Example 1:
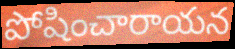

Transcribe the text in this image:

పోషించారాయన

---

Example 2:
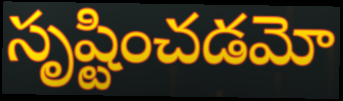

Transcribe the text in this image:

సృష్టించడమో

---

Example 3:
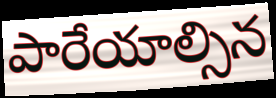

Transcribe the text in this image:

పారేయాల్సిన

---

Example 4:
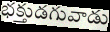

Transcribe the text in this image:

భక్తుడగువాడు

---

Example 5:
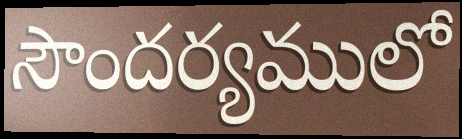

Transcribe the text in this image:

సౌందర్యములో